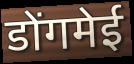
डोंगमेई